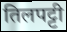
तिलपट्टी